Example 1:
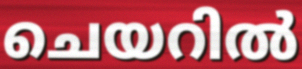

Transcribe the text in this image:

ചെയറിൽ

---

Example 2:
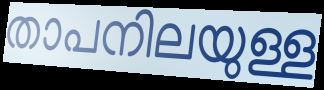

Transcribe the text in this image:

താപനിലയുള്ള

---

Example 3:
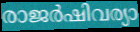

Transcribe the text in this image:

രാജർഷിവര്യാ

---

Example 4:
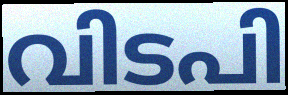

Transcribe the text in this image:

വിടപി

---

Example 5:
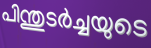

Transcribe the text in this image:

പിന്തുടർച്ചയുടെ